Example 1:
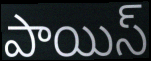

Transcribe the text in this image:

పాయిస్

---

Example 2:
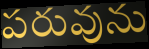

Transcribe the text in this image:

పరువును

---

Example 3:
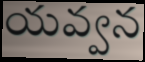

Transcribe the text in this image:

యవ్వన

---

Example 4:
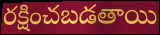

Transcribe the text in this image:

రక్షించబడతాయి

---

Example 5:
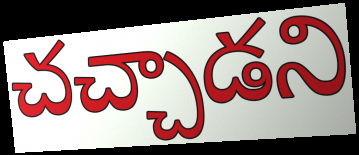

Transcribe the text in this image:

చచ్చాడని